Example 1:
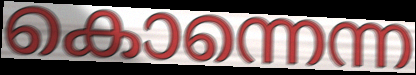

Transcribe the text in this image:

കൊന്നെന്ന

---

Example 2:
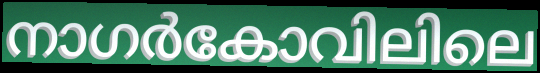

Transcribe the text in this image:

നാഗർകോവിലിലെ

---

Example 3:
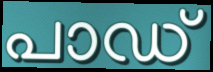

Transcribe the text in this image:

പാഡ്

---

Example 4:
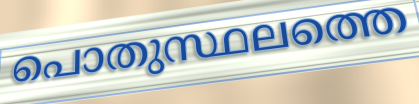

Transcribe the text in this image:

പൊതുസ്ഥലത്തെ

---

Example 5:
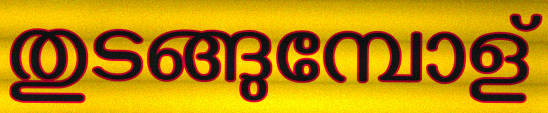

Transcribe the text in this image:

തുടങ്ങുമ്പോള്